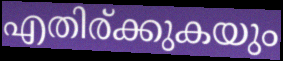
എതിര്ക്കുകയും